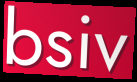
bsiv